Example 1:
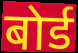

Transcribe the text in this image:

बोर्ड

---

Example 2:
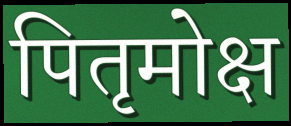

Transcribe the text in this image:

पितृमोक्ष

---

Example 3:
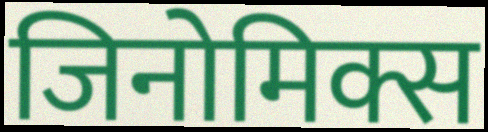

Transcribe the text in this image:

जिनोमिक्स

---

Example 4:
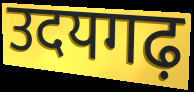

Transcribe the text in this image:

उदयगढ़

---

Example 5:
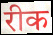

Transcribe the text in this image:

रीक